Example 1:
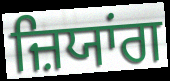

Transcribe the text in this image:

ਜ਼ਿਯਾਂਗ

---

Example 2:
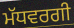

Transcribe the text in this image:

ਮੱਧਵਰਗੀ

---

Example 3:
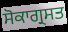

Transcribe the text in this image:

ਸੋਕਾਗ੍ਰਸਤ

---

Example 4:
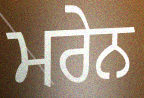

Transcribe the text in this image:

ਮਰੇਨ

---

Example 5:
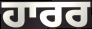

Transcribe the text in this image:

ਹਾਰਰ